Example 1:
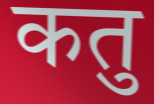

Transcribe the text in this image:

कतु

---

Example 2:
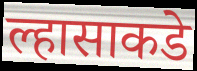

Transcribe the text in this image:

ल्हासाकडे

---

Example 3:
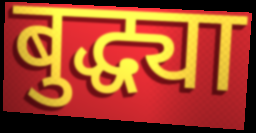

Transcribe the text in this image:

बुद्ध्या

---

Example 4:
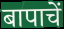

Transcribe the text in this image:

बापाचें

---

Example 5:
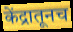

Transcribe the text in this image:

केंद्रातूनच